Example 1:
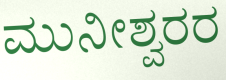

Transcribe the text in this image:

ಮುನೀಶ್ವರರ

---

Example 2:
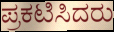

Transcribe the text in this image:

ಪ್ರಕಟಿಸಿದರು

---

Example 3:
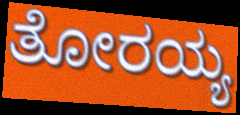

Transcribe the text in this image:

ತೋರಯ್ಯ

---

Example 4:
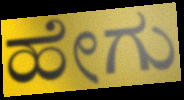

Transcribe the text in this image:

ಹೇಗು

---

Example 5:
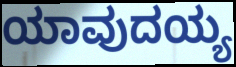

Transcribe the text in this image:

ಯಾವುದಯ್ಯ